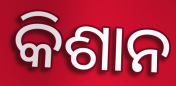
କିଶାନ